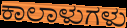
ಕಾಲಾಳುಗಳು